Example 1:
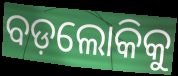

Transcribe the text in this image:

ବଡ଼ଲୋକିକୁ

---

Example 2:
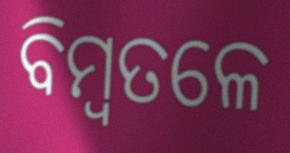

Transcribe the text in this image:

ବିମ୍ବତଳେ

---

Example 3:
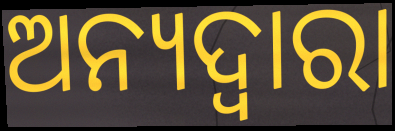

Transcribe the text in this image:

ଅନ୍ୟଦ୍ୱାରା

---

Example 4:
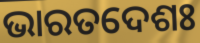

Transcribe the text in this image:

ଭାରତଦେଶଃ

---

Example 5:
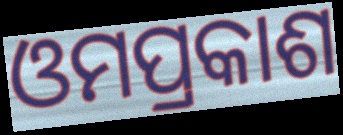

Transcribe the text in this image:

ଓମପ୍ରକାଶ